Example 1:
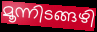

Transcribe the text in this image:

മൂന്നിടങ്ങഴി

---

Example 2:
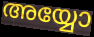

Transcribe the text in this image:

അയ്യോ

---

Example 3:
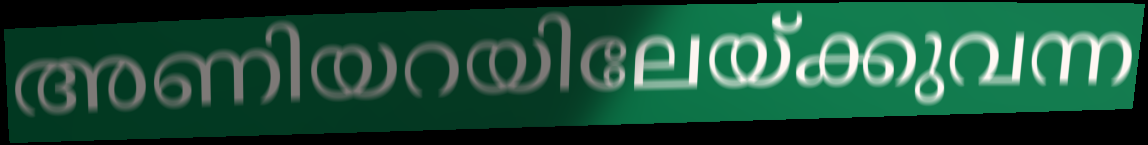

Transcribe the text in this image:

അണിയറയിലേയ്ക്കുവന്ന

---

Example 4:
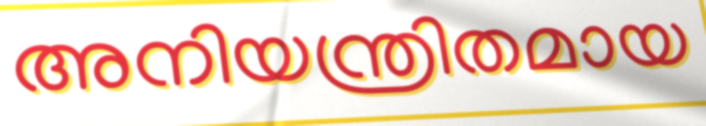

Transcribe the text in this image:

അനിയന്ത്രിതമായ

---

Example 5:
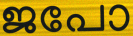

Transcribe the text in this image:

ജപോ